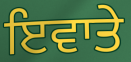
ਇਵਾਤੇ